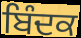
ਬਿੰਦਕ